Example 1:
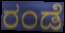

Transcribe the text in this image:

ರಂಡೆ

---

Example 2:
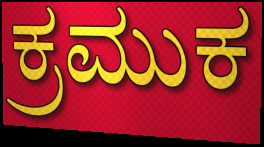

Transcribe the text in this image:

ಕ್ರಮುಕ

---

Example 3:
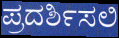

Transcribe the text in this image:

ಪ್ರದರ್ಶಿಸಲಿ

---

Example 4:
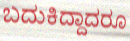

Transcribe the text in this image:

ಬದುಕಿದ್ದಾದರೂ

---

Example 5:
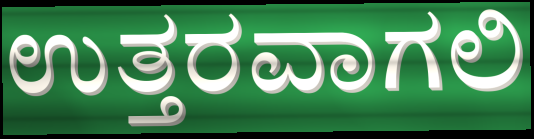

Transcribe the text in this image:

ಉತ್ತರವಾಗಲಿ